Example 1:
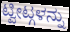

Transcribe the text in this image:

ಟ್ವೀಟ್ಗಳನ್ನು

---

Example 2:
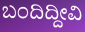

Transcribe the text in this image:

ಬಂದಿದ್ದೀವಿ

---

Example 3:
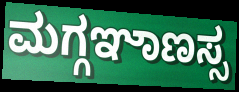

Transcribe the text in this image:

ಮಗ್ಗಞಾಣಸ್ಸ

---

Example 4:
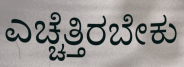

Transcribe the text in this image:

ಎಚ್ಚೆತ್ತಿರಬೇಕು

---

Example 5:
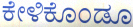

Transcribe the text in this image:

ಕೇಳಿಕೊಂಡೂ